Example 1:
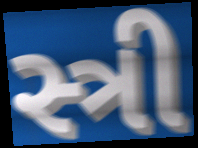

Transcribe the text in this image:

સ્ત્રી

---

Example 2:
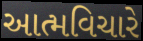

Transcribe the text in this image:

આત્મવિચારે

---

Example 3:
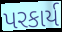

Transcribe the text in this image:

પરકાર્ય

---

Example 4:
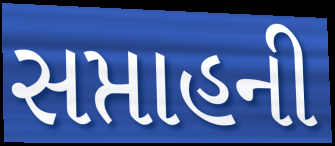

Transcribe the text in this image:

સપ્તાહની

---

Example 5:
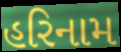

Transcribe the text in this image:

હરિનામ